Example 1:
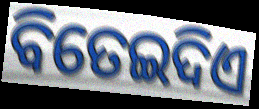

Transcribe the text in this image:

ବିତେଇଦିଏ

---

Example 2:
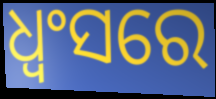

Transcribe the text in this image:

ଧ୍ଵଂସରେ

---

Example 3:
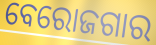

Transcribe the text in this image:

ବେରୋଜଗାର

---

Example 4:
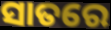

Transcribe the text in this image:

ସାତରେ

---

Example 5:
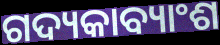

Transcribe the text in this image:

ଗଦ୍ୟକାବ୍ୟାଂଶ